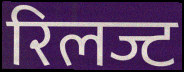
रिलज्ट